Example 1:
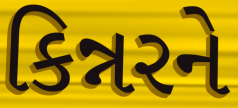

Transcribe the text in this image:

કિન્નરને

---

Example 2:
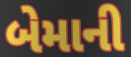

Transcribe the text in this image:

બેમાની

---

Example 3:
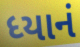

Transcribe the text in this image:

ધ્યાનં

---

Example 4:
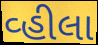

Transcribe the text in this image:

વ્હીલા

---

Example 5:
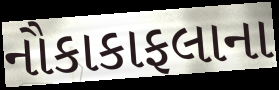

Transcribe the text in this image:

નૌકાકાફલાના